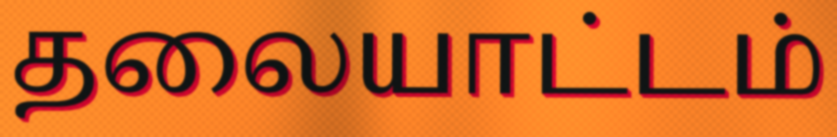
தலையாட்டம்